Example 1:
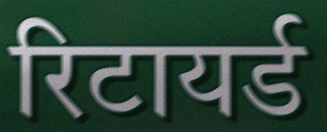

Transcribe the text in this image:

रिटायर्ड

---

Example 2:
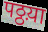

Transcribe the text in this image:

पठ्ठय़ा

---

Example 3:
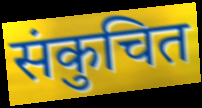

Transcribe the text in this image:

संकुचित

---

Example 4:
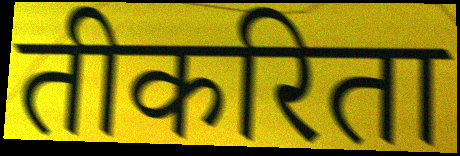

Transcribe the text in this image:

तीकरिता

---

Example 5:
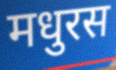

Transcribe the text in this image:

मधुरस